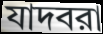
যাদবরা